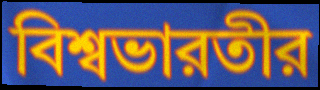
বিশ্বভারতীর